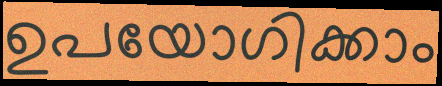
ഉപയോഗിക്കാം